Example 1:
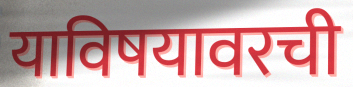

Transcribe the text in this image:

याविषयावरची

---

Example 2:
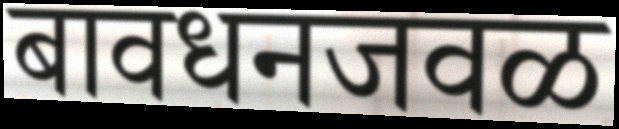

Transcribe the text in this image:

बावधनजवळ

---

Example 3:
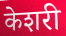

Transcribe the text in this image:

केशरी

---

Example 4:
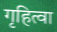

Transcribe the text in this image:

गृहित्वा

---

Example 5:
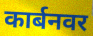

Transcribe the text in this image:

कार्बनवर